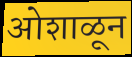
ओशाळून